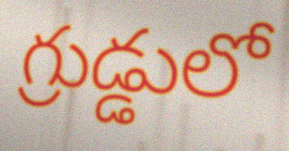
గ్రుడ్డులో